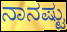
ನಾನಷ್ಟು